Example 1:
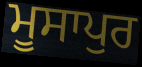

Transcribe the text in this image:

ਮੂਸਾਪੁਰ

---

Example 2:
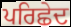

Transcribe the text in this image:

ਪਰਿਛੇਦ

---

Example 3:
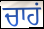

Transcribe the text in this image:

ਚਾਹਂ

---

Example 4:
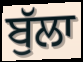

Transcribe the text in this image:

ਬੁੱਲਾ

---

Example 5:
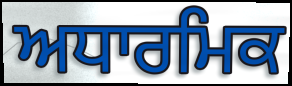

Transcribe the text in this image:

ਅਧਾਰਮਿਕ